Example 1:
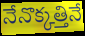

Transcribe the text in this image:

నేనొక్కత్తినే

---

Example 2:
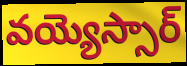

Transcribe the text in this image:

వయ్యెస్సార్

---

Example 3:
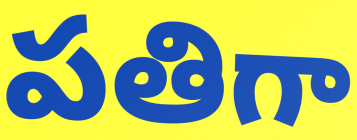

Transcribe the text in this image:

పతిగా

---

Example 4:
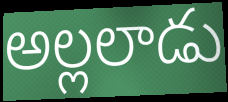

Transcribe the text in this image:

అల్లలాడు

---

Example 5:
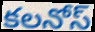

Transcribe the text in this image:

కలనోస్